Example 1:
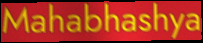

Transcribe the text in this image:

Mahabhashya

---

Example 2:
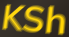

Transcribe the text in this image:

KSh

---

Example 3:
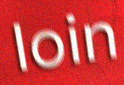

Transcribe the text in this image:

loin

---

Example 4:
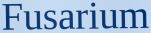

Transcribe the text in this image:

Fusarium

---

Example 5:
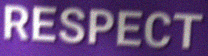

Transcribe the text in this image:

RESPECT